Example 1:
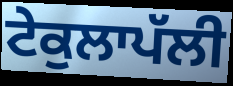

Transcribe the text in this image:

ਟੇਕੁਲਾਪੱਲੀ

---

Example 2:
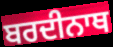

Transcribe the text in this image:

ਬਰਦੀਨਾਥ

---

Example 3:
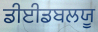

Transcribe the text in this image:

ਡੀਈਡਬਲਯੂ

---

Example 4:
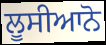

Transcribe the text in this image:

ਲੂਸੀਆਨੋ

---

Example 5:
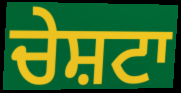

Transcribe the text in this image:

ਚੇਸ਼ਟਾ